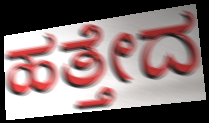
ಹತ್ತೇದ